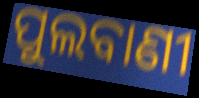
ପୁଲବାଣୀ